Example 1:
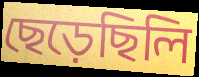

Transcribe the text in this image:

ছেড়েছিলি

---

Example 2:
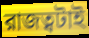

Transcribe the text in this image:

রাজত্বটাই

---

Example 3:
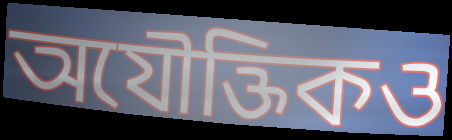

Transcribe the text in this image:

অযৌক্তিকও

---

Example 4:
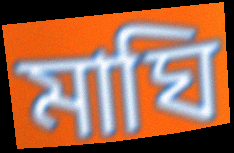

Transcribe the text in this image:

মাঘি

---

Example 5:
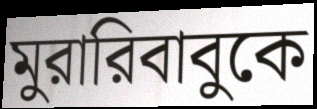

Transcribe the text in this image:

মুরারিবাবুকে